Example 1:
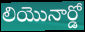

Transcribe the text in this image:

లియొనార్డో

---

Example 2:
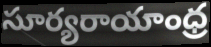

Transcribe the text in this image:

సూర్యరాయాంధ్ర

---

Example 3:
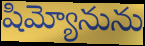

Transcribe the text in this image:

షిమ్యోనును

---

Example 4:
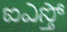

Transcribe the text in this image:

ఐఎస్తో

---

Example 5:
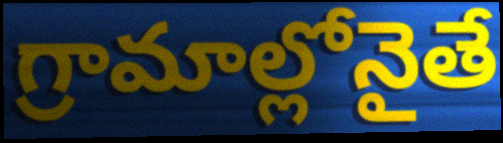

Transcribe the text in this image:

గ్రామాల్లోనైతే